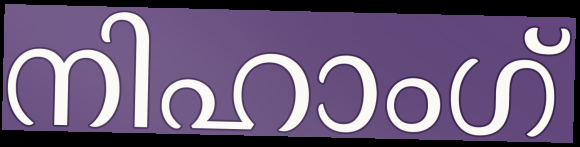
നിഹാംഗ്